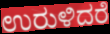
ಉರುಳಿದರೆ